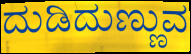
ದುಡಿದುಣ್ಣುವ